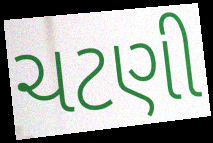
ચટણી